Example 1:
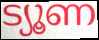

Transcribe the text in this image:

ട്യൂണ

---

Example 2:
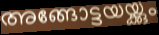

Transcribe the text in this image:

അങ്ങോട്ടയയ്ക്കും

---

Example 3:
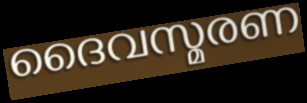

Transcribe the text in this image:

ദൈവസ്മരണ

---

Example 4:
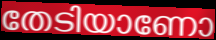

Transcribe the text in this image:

തേടിയാണോ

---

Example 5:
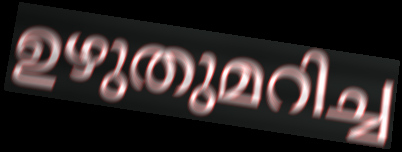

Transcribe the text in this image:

ഉഴുതുമറിച്ച